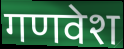
गणवेश